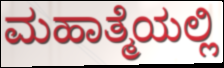
ಮಹಾತ್ಮೆಯಲ್ಲಿ